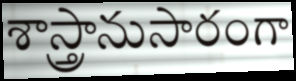
శాస్త్రానుసారంగా